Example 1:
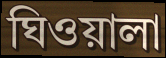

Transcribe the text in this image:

ঘিওয়ালা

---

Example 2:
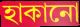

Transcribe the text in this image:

হাকানো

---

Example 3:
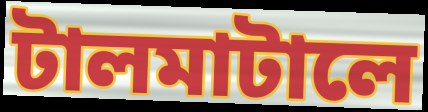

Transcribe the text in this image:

টালমাটালে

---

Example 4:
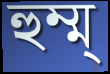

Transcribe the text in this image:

হুম্ম্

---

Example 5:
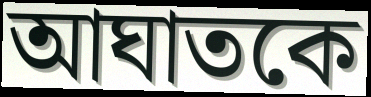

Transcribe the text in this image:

আঘাতকে